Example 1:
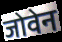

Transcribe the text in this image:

जोवेन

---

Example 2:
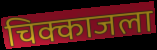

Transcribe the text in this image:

चिक्काजला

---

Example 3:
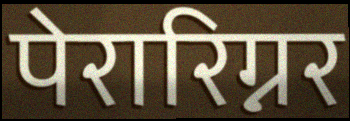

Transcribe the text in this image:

पेरारिग्नर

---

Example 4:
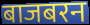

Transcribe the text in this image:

बाजबरन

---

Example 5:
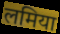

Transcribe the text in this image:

लमिया